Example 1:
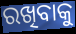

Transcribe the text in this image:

ରଖିବାକୁ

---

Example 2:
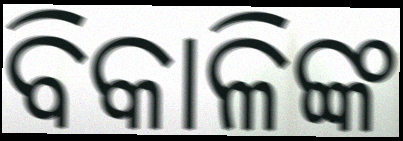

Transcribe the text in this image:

ବିକାଳିଙ୍କ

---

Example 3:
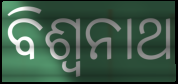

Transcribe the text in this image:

ବିଶ୍ୱନାଥ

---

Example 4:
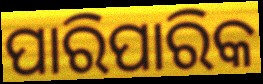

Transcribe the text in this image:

ପାରିପାରିକ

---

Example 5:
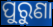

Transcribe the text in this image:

ପୁରୁଣା